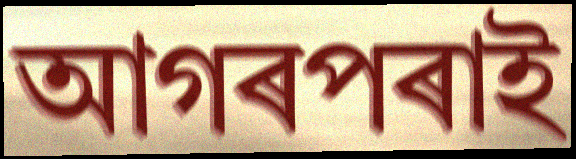
আগৰপৰাই